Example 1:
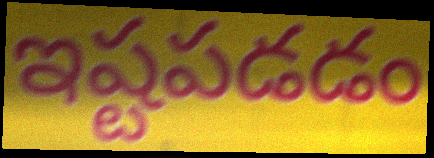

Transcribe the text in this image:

ఇష్టపడడం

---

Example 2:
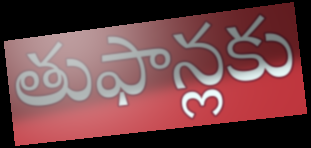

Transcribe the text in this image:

తుఫాన్లకు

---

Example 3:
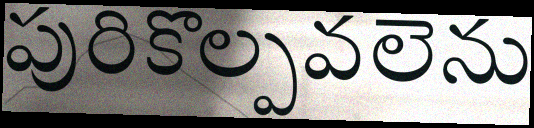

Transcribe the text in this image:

పురికొల్పవలెను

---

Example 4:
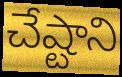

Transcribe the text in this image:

చేష్టాని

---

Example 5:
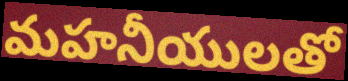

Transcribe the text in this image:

మహనీయులతో